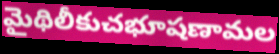
మైథిలీకుచభూషణామల